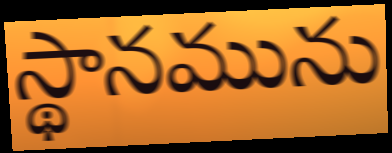
స్థానమును